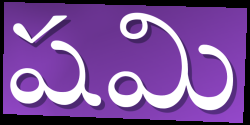
షమి